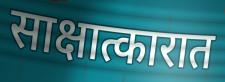
साक्षात्कारात